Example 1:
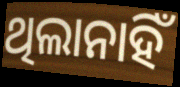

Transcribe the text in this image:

ଥିଲାନାହିଁ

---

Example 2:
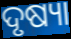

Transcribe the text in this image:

ଦୃଷ୍ୟା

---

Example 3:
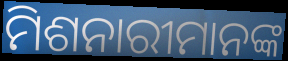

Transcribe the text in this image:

ମିଶନାରୀମାନଙ୍କ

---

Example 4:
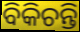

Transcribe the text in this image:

ବିକିଚନ୍ତି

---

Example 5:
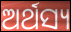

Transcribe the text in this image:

ଅର୍ଥସ୍ୟ